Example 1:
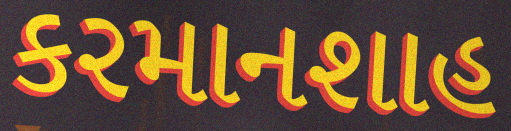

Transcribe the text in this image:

કરમાનશાહ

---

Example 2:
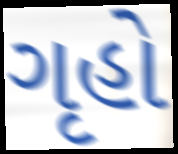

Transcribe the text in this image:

ગૃહો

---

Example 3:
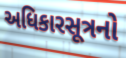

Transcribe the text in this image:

અધિકારસૂત્રનો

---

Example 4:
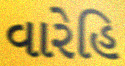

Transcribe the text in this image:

વારેહિ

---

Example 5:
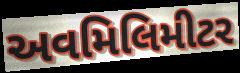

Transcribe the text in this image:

અવમિલિમીટર